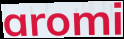
aromi